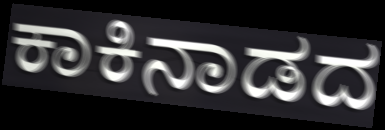
ಕಾಕಿನಾಡದ